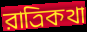
রাত্রিকথা